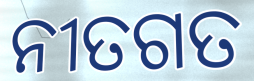
ନୀତଗତ